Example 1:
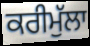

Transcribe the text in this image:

ਕਰੀਮੁੱਲਾ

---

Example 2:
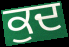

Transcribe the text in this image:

ਕੁਦ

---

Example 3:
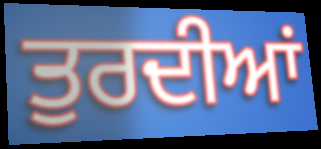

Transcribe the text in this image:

ਤੁਰਦੀਆਂ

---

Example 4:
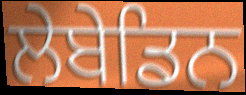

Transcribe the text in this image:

ਲੇਬੇਡਿਨ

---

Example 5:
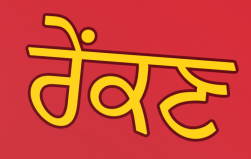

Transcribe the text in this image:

ਰੇੰਕਣ